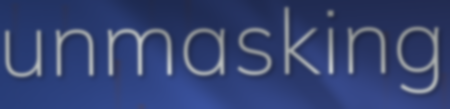
unmasking